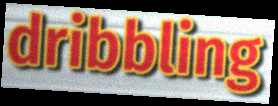
dribbling